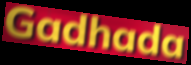
Gadhada